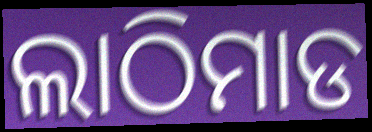
ଲାଠିମାଡ